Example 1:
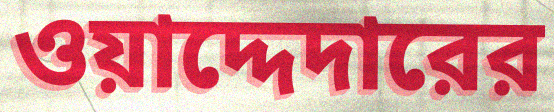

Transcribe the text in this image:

ওয়াদ্দেদারের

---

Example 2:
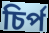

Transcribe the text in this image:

চির্প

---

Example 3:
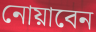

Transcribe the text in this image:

নোয়াবেন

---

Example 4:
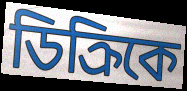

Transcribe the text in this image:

ডিক্রিকে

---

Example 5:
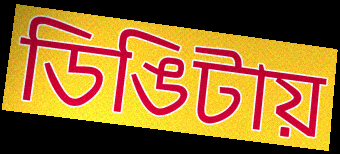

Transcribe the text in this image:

ডিঙিটায়